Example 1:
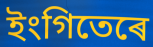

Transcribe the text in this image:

ইংগিতেৰে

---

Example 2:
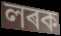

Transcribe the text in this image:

লৰক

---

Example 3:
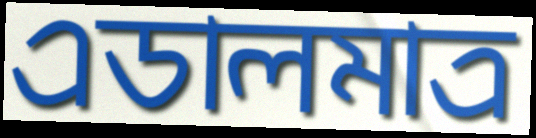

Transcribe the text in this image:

এডালমাত্ৰ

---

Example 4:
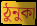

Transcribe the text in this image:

ঠুনুকা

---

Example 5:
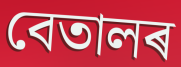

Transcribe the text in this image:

বেতালৰ